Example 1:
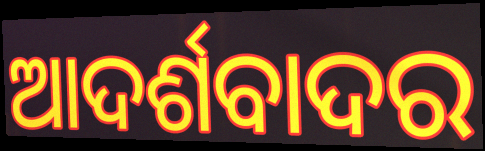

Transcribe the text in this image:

ଆଦର୍ଶବାଦର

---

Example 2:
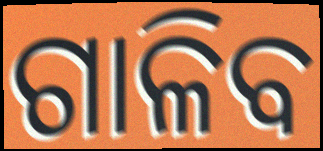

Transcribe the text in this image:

ଗାଳିବ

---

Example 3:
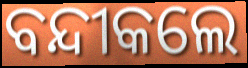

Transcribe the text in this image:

ବନ୍ଦୀକଲେ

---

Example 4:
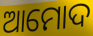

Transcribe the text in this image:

ଆମୋଦ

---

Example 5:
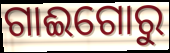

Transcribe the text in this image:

ଗାଈଗୋରୁ